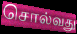
சொல்வது